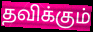
தவிக்கும்